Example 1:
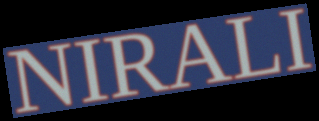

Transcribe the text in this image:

NIRALI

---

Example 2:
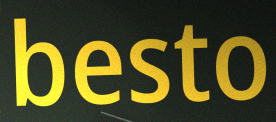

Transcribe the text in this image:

besto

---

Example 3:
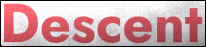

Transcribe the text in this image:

Descent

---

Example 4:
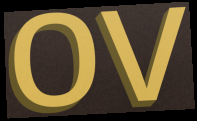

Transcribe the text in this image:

ov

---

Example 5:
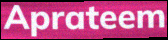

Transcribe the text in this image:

Aprateem